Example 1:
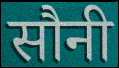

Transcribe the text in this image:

सौनी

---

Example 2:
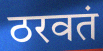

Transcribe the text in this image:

ठरवतं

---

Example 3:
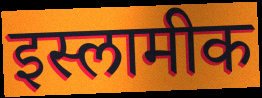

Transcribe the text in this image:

इस्लामीक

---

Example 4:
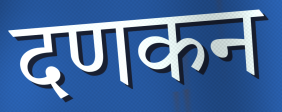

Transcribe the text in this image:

दणकन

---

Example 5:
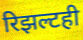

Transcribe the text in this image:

रिझल्टही